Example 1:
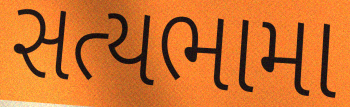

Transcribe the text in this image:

સત્યભામા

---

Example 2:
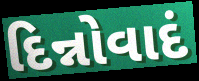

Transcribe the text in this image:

દિન્નોવાદં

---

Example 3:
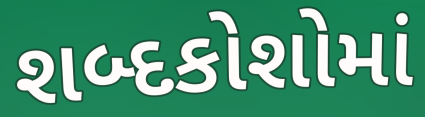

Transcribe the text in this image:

શબ્દકોશોમાં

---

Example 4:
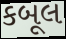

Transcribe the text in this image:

કબૂલ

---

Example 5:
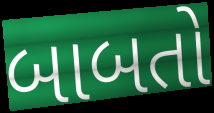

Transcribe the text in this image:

બાબતો